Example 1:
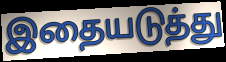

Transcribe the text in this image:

இதையடுத்து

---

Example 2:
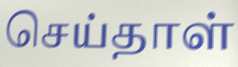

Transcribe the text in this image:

செய்தாள்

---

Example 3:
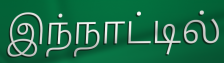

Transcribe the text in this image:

இந்நாட்டில்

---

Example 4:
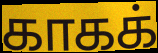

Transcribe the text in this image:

காகக்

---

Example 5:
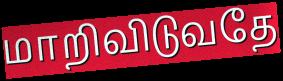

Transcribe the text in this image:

மாறிவிடுவதே